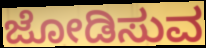
ಜೋಡಿಸುವ